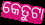
କେତୁଟା